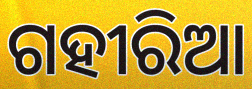
ଗହୀରିଆ